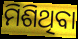
ମିଶିଥିବା